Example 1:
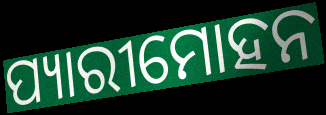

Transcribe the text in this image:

ପ୍ୟାରୀମୋହନ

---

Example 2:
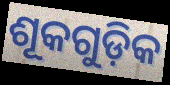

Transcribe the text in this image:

ଶୂକଗୁଡ଼ିକ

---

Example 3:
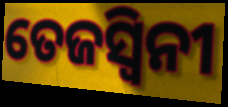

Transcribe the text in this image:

ତେଜସ୍ଵିନୀ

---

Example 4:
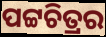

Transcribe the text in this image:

ପଟ୍ଟଚିତ୍ରର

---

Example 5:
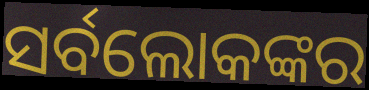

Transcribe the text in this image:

ସର୍ବଲୋକଙ୍କର